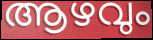
ആഴവും